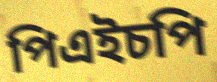
পিএইচপি